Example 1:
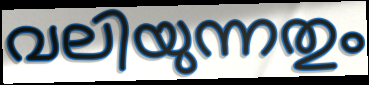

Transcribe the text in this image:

വലിയുന്നതും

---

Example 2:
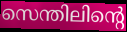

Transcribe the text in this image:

സെന്തിലിന്റെ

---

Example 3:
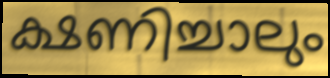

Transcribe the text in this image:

ക്ഷണിച്ചാലും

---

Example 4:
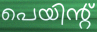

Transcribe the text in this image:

പെയിന്റ്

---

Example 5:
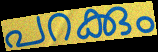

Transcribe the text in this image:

പറക്കും